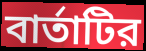
বার্তাটির